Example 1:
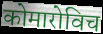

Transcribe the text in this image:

कोमारोविच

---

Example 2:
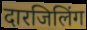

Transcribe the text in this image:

दारजिलिंग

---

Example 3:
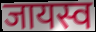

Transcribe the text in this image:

जायस्व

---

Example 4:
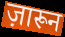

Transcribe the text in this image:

ज़ारून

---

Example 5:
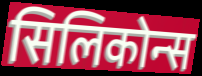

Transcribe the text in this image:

सिलिकोन्स